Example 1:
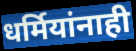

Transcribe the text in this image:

धर्मियांनाही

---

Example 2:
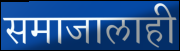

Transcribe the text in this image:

समाजालाही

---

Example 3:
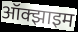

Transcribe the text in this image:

ऑक्झाइम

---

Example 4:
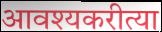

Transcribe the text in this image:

आवश्यकरीत्या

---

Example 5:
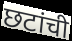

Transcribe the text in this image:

छटांची